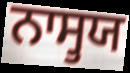
ਨਾਸ੍ਤਯ